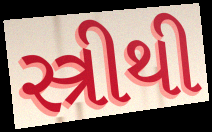
સ્ત્રીથી